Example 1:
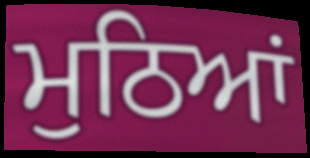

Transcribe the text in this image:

ਮੁਠਿਆਂ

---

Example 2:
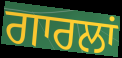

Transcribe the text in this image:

ਗਾਰਲਾਂ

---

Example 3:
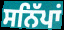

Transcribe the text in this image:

ਸਨਿੱਪਾਂ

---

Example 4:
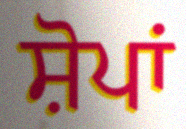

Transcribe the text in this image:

ਸ਼ੋਪਾਂ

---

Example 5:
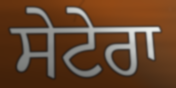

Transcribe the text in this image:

ਸੇਟੇਰਾ